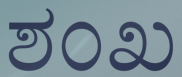
ಶಂಖ